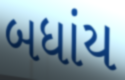
બધાંય